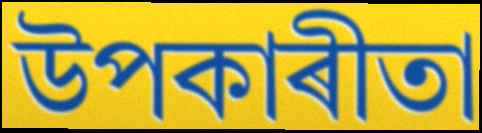
উপকাৰীতা